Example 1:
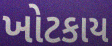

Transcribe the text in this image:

ખોટકાય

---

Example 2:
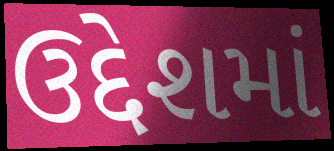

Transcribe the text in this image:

ઉદ્દેશમાં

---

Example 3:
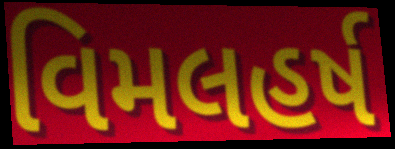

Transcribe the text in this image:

વિમલહર્ષ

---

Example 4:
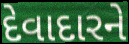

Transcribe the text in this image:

દેવાદારને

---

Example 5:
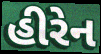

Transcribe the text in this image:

હીરેન